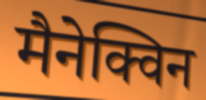
मैनेक्विन